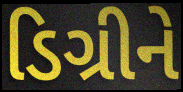
ડિગ્રીને